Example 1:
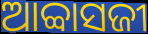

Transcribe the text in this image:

ଆବ୍ବାସଜୀ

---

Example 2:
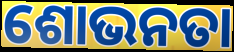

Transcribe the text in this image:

ଶୋଭନତା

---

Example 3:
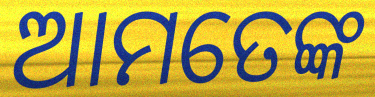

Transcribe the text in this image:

ଆମତେଙ୍କ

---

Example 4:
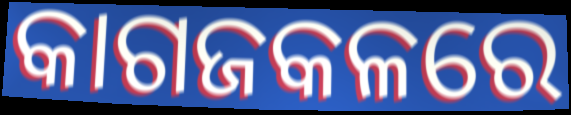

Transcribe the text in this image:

କାଗଜକଳରେ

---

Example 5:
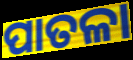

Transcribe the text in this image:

ପାତଳା